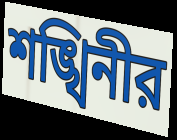
শঙ্খিনীর